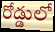
రోడ్డులో